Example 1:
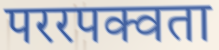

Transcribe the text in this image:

पररपक्वता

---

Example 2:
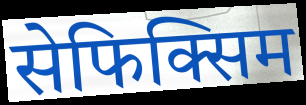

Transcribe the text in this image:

सेफिक्सिम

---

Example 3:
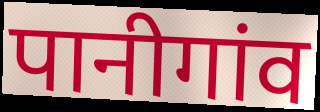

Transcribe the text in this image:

पानीगांव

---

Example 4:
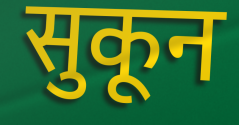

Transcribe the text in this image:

सुकून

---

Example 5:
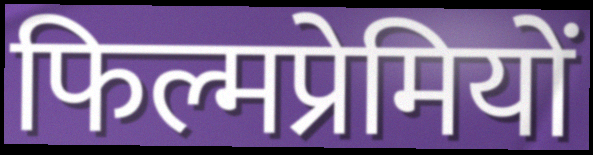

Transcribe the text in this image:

फिल्मप्रेमियों